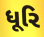
ધૂરિ